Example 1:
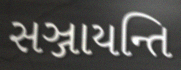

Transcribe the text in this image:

સઞ્જાયન્તિ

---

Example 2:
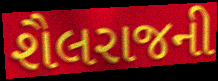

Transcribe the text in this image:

શૈલરાજની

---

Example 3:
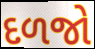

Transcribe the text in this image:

દળજો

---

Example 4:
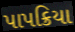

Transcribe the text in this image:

પાપક્રિયા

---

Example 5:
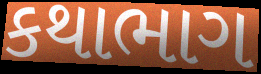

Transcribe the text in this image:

કથાભાગ